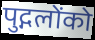
पुद्गलोंको